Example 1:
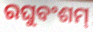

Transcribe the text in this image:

ରଘୁବଂଶମ୍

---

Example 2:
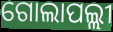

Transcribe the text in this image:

ଗୋଲାପଲ୍ଲୀ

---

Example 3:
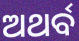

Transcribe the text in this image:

ଅଥର୍ବ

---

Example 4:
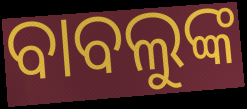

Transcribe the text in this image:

ବାବଲୁଙ୍କ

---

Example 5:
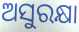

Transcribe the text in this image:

ଅସୁରକ୍ଷା